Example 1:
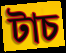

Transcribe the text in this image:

টাচ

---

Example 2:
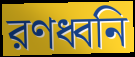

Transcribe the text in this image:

রণধ্বনি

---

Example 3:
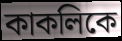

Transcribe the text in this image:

কাকলিকে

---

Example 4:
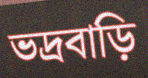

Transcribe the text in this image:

ভদ্রবাড়ি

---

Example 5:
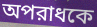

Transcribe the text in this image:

অপরাধকে